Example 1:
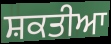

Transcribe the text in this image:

ਸ਼ਕਤੀਆ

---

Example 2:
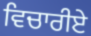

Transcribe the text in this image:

ਵਿਚਾਰੀਏ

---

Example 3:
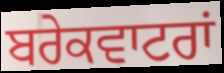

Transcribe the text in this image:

ਬਰੇਕਵਾਟਰਾਂ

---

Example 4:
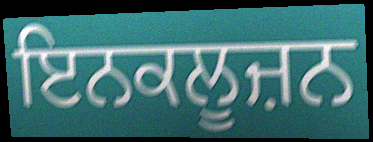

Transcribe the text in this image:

ਇਨਕਲੂਜ਼ਨ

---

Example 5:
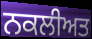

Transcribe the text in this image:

ਨਕਲੀਅਤ